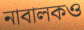
নাবালকও